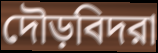
দৌড়বিদরা